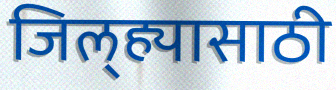
जिल्ह्यासाठी